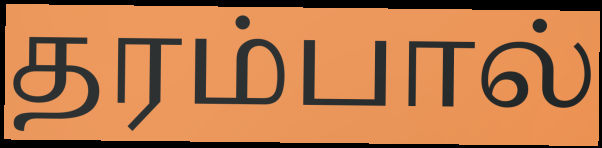
தரம்பால்